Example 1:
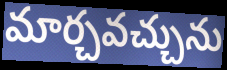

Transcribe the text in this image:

మార్చవచ్చును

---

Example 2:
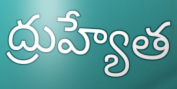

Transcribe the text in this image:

ద్రుహ్యేత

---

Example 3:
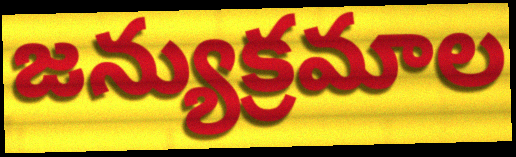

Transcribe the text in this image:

జన్యుక్రమాల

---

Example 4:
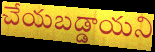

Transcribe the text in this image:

చేయబడ్డాయని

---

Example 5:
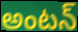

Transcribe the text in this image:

అంటన్